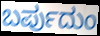
ಬರ್ಪುದುಂ